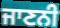
ਜਾਣਨੀ